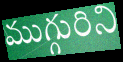
ముగ్గురిని